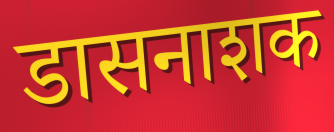
डासनाशक